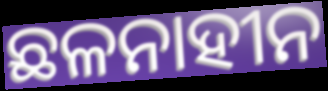
ଛଳନାହୀନ